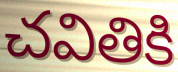
చవితికి